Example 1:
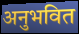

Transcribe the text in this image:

अनुभवित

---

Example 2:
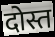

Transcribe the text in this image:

दोस्त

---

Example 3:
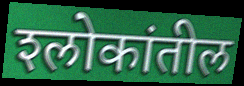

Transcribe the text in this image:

श्लोकांतील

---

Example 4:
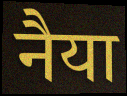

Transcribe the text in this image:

नैया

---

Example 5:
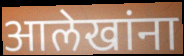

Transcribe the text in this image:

आलेखांना